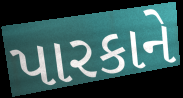
પારકાને